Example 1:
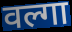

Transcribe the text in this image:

वल्गा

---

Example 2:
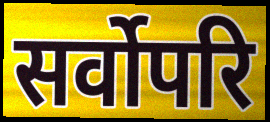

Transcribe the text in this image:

सर्वोपरि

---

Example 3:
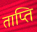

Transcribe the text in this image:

ताप्ति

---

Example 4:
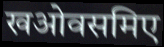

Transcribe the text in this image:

खओवसमिए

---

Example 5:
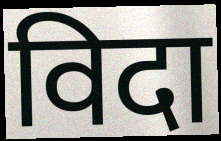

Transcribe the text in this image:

विदा